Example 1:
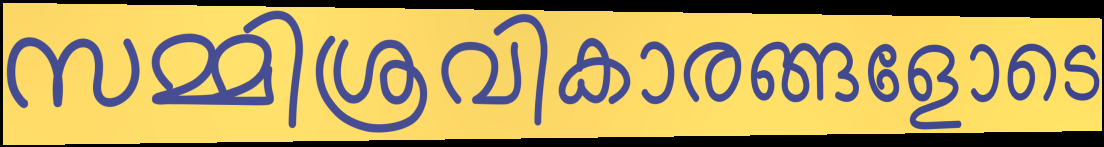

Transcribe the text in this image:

സമ്മിശ്രവികാരങ്ങളോടെ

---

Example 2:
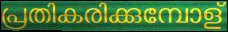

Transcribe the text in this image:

പ്രതികരിക്കുമ്പോള്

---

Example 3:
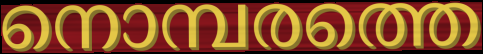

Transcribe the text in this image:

നൊമ്പരത്തെ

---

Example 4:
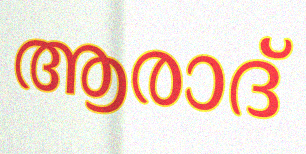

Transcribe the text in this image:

ആരാദ്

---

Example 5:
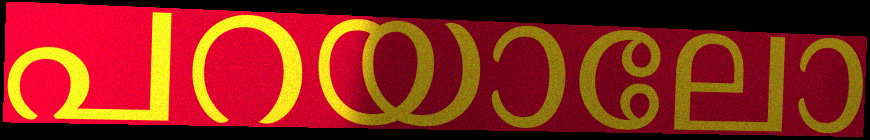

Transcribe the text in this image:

പറയാലോ